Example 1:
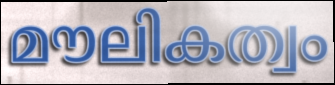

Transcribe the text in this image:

മൗലികത്വം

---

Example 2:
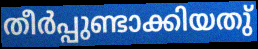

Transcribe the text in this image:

തീർപ്പുണ്ടാക്കിയതു്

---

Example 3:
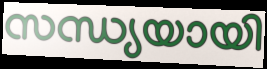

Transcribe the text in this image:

സന്ധ്യയായി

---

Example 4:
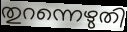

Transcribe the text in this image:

തുറന്നെഴുതി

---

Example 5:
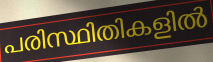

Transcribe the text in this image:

പരിസ്ഥിതികളിൽ